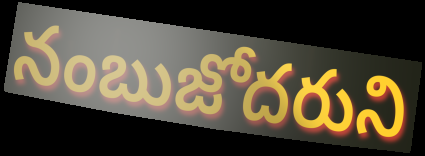
నంబుజోదరుని